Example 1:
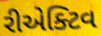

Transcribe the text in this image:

રીએક્ટિવ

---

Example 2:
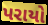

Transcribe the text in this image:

પરાયો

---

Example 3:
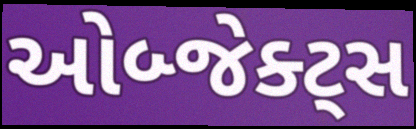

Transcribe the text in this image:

ઓબ્જેક્ટ્સ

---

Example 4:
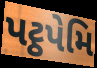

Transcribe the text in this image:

પટ્ઠપેમિ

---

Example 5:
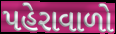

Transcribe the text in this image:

પહેરાવાળો